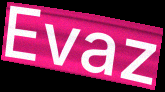
Evaz